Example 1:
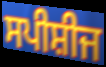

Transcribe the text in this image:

ਸਪੀਸ਼ੀਜ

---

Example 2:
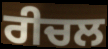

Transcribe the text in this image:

ਰੀਚਲ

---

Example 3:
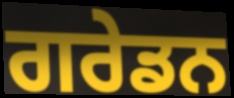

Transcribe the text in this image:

ਗਰੇਡਨ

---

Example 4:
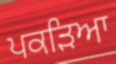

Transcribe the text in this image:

ਪਕੜਿਆ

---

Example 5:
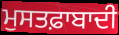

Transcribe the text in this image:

ਮੁਸਤਫ਼ਾਬਾਦੀ